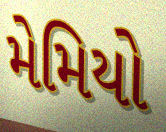
મેમિયો